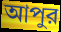
আপুর